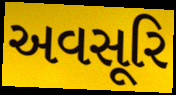
અવસૂરિ